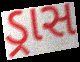
ડ્રાસ